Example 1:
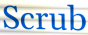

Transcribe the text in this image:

Scrub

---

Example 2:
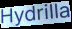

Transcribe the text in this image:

Hydrilla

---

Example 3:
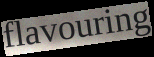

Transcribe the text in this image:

flavouring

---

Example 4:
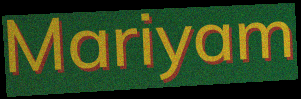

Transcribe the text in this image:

Mariyam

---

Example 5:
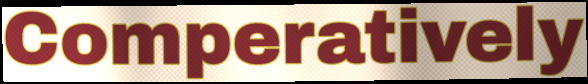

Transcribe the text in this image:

Comperatively